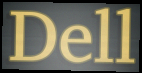
Dell